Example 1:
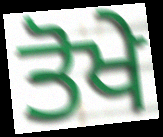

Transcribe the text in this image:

ਤੋਖੇ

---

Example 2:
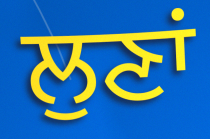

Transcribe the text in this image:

ਲੁਣਾਂ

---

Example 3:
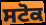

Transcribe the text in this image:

ਸਟੋਕ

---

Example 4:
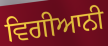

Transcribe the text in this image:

ਵਿਗੀਆਨੀ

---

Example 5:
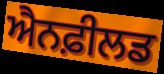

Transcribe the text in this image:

ਐਨਫ਼ੀਲਡ